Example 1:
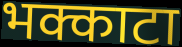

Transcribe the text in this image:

भक्काटा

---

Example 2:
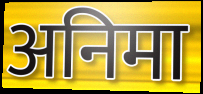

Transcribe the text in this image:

अनिमा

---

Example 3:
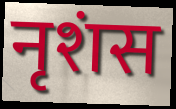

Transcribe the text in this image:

नृशंस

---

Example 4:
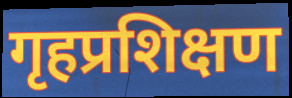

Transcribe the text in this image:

गृहप्रशिक्षण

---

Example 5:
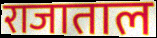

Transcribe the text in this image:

राजाताल